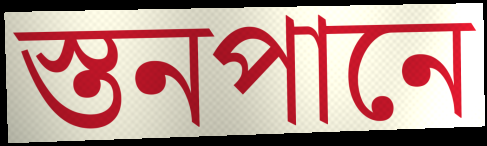
স্তনপানে